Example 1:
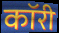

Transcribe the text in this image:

कॉरी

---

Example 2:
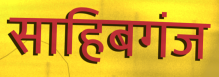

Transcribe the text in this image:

साहिबगंज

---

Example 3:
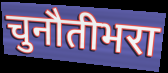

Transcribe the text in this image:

चुनौतीभरा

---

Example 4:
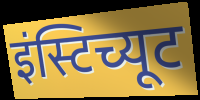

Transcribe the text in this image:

इंस्टिच्यूट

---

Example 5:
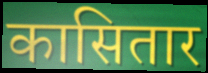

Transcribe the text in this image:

कासितार